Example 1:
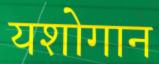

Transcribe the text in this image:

यशोगान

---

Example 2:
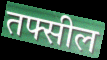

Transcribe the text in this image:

तफ्सील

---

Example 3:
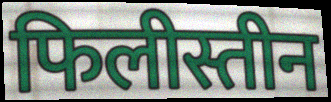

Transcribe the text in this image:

फिलीस्तीन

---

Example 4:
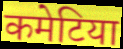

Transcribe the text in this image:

कमेटिया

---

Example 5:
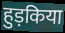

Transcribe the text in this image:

हुड़किया